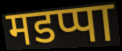
मडप्पा